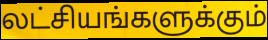
லட்சியங்களுக்கும்